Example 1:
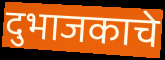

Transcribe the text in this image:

दुभाजकाचे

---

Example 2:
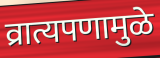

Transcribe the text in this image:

व्रात्यपणामुळे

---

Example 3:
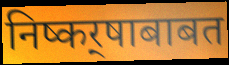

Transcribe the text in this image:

निष्कर्षाबाबत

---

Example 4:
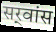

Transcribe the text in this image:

सर्वांस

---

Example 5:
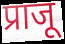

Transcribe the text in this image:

प्राजू